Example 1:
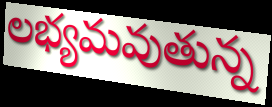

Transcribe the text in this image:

లభ్యమవుతున్న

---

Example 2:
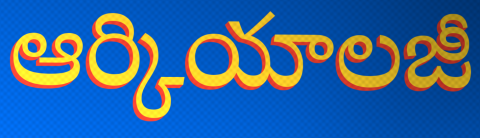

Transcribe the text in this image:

ఆర్కియాలజీ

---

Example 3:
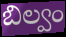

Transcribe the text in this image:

బిల్వం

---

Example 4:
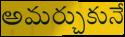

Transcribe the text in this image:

అమర్చుకునే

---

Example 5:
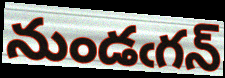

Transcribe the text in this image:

నుండఁగన్